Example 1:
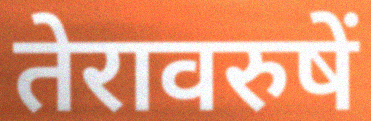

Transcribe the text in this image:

तेरावरुषें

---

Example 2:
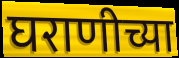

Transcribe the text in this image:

घराणीच्या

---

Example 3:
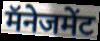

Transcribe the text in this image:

मॅनेजमेंट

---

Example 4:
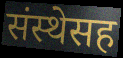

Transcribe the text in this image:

संस्थेसह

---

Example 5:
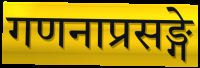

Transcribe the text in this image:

गणनाप्रसङ्गे